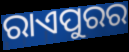
ରାଏପୁରର